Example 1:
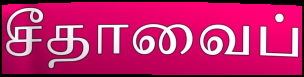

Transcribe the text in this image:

சீதாவைப்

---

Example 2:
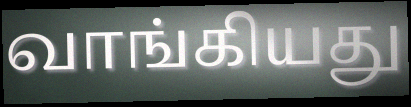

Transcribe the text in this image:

வாங்கியது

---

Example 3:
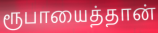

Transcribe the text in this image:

ரூபாயைத்தான்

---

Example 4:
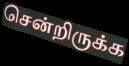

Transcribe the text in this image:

சென்றிருக்க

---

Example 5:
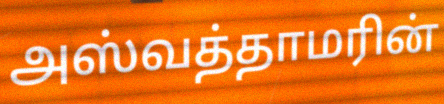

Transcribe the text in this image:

அஸ்வத்தாமரின்